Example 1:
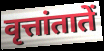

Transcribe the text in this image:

वृत्तांतातें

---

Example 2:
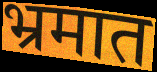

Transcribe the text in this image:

भ्रमात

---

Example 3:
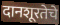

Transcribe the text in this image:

दानशूरतेचे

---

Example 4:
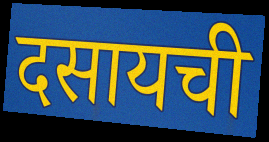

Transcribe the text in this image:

दसायची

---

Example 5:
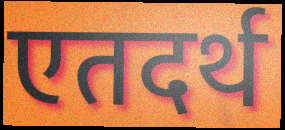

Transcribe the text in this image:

एतदर्थ